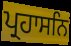
ਪ੍ਰਹਾਸਨਿ